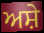
ਅਸ਼ੇ